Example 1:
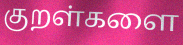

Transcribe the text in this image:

குறள்களை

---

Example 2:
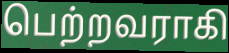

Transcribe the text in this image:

பெற்றவராகி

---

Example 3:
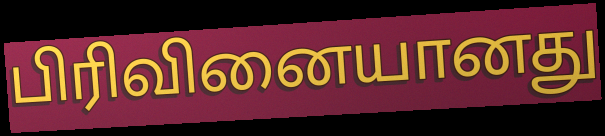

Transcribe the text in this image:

பிரிவினையானது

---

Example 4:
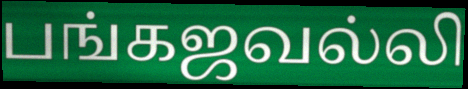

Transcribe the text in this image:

பங்கஜவல்லி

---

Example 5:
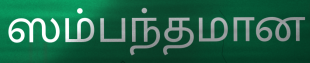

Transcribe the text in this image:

ஸம்பந்தமான